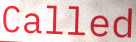
Called